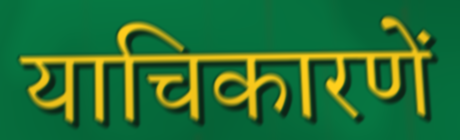
याचिकारणें